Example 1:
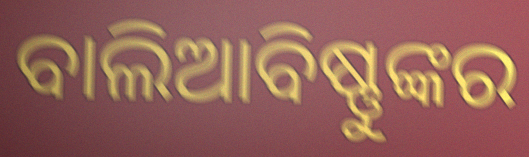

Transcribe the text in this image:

ବାଲିଆବିଷ୍ଣୁଙ୍କର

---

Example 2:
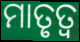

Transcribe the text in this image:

ମାତୃତ୍ୱ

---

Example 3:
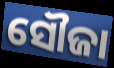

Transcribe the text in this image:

ସୌଜା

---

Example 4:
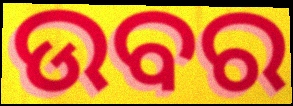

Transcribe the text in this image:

ଉବର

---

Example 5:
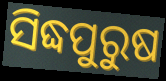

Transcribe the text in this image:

ସିଦ୍ଧପୁରୁଷ